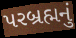
પરબ્રહ્મનું